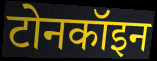
टोनकॉइन